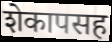
शेकापसह